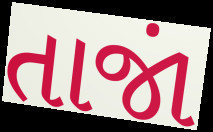
તાજાં